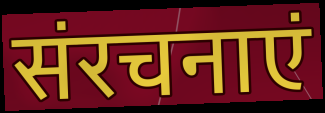
संरचनाएं